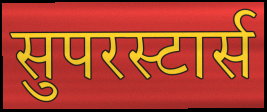
सुपरस्टार्स